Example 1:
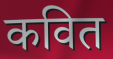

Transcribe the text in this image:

कवित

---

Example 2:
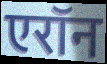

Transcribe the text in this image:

एरॉन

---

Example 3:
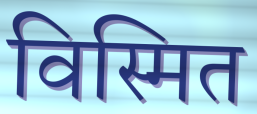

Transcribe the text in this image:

विस्मित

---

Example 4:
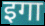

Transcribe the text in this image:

इगा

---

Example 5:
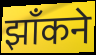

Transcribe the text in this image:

झाँकने